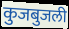
कुजबुजली